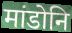
मांडोनि